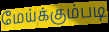
மேய்க்கும்படி